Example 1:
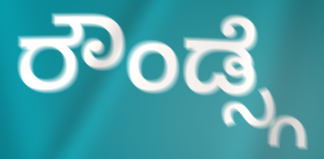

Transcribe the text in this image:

ರೌಂಡ್ಸ್ಗೆ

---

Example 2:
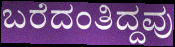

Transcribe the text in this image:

ಬರೆದಂತಿದ್ದವು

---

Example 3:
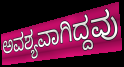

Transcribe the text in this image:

ಅವಶ್ಯವಾಗಿದ್ದವು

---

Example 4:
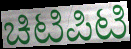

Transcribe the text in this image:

ಚಿಟಿಪಿಟಿ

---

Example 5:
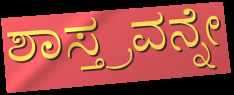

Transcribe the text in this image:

ಶಾಸ್ತ್ರವನ್ನೇ